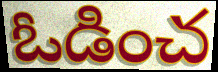
ఓడించ